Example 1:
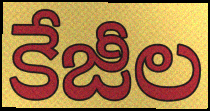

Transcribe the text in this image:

కేజీల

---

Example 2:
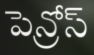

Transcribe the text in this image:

పెన్రోస్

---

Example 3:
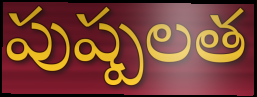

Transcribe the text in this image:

పుష్పలత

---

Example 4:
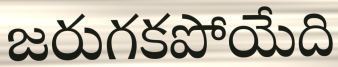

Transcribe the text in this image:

జరుగకపోయేది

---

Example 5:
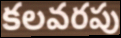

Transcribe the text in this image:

కలవరపు